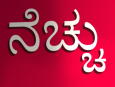
ನೆಚ್ಚು